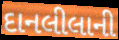
દાનલીલાની